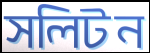
সলিটন